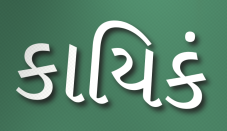
કાયિકં